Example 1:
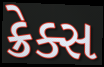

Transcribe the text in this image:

ક્રેક્સ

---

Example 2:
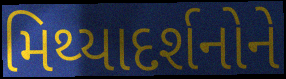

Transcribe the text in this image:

મિથ્યાદર્શનોને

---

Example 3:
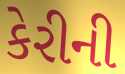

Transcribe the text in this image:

કેરીની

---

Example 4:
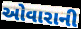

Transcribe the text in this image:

ઓવારાની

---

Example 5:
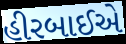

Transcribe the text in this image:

હીરબાઈએ